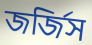
জর্জিস